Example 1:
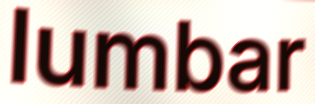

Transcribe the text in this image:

lumbar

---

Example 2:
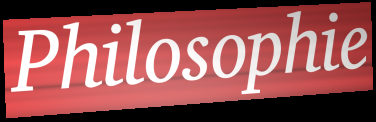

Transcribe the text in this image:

Philosophie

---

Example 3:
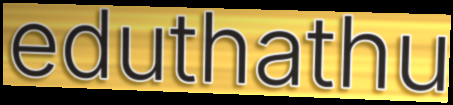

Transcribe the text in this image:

eduthathu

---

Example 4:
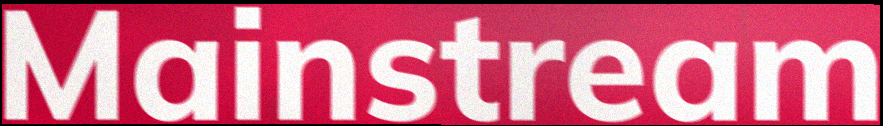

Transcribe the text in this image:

Mainstream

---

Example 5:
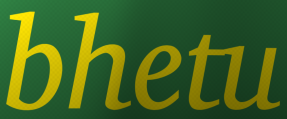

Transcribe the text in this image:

bhetu